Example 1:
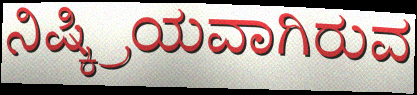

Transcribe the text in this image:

ನಿಷ್ಕ್ರಿಯವಾಗಿರುವ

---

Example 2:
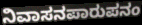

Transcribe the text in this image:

ನಿವಾಸನಪಾರುಪನಂ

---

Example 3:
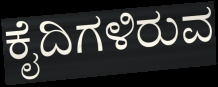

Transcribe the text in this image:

ಕೈದಿಗಳಿರುವ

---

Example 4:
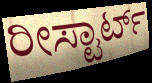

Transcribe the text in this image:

ರೀಸ್ಟಾರ್ಟ್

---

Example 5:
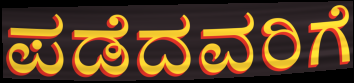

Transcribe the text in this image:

ಪಡೆದವರಿಗೆ